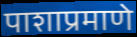
पाशाप्रमाणे